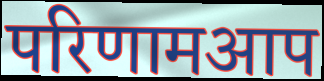
परिणामआप